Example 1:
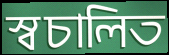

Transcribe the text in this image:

স্বচালিত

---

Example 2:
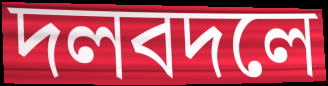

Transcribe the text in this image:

দলবদলে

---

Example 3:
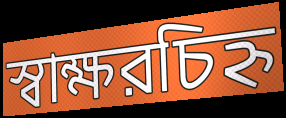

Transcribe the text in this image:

স্বাক্ষরচিহ্ন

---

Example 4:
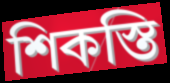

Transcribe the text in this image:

শিকস্তি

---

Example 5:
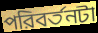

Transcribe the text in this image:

পরিবর্তনটা